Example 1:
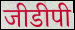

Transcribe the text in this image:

जीडीपी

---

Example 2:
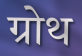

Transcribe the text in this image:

ग्रोथ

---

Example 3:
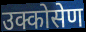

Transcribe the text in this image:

उक्कोसेण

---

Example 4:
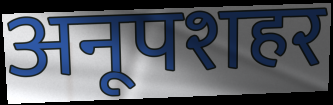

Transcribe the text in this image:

अनूपशहर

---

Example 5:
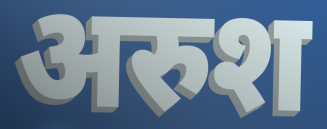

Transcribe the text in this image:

अरुश